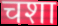
चशा